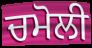
ਚਮੋਲੀ